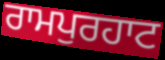
ਰਾਮਪੁਰਹਾਟ